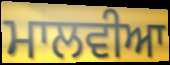
ਮਾਲਵੀਆ